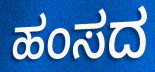
ಹಂಸದ